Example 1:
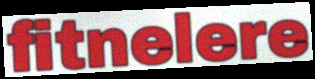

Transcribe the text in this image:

fitnelere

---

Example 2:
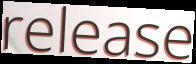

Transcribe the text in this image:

release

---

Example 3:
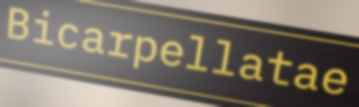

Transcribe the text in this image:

Bicarpellatae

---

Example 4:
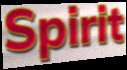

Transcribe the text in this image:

Spirit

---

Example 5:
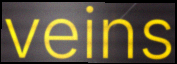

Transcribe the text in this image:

veins